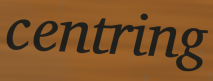
centring